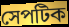
সেপটিক